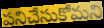
పనిచేసుకోమని